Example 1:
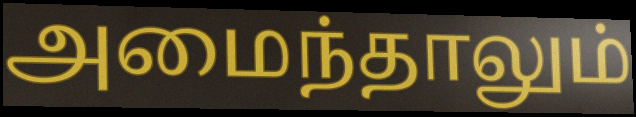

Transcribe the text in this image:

அமைந்தாலும்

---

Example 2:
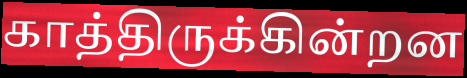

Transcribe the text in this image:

காத்திருக்கின்றன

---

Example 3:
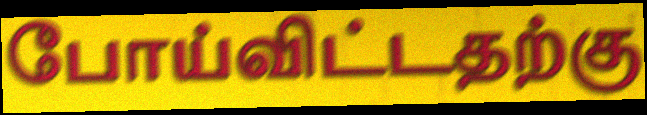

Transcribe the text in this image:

போய்விட்டதற்கு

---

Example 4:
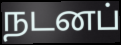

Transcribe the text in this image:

நடனப்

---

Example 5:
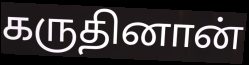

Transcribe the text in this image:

கருதினான்